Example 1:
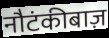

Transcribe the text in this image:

नौटंकीबाज़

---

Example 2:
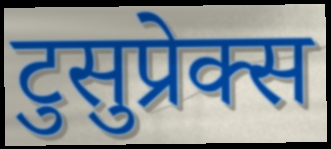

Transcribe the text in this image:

टुसुप्रेक्स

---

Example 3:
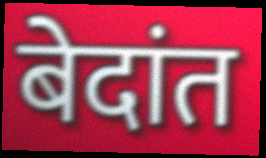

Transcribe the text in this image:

बेदांत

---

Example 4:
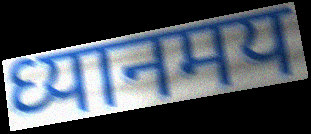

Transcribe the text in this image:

ध्यानमय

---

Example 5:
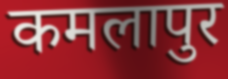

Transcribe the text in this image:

कमलापुर